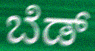
ಬೆಡ್